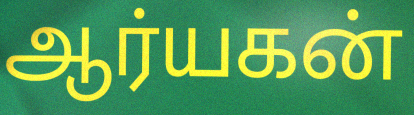
ஆர்யகன்